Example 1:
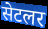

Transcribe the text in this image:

सेटलर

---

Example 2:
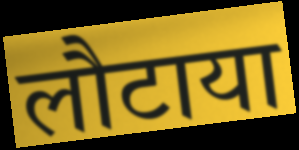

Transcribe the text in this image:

लौटाया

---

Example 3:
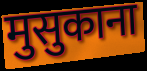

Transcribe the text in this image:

मुसुकाना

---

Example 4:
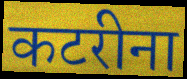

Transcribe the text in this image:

कटरीना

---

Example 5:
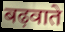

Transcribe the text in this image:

बढ़वाते